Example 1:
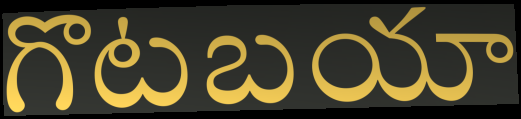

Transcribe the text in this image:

గొటబయా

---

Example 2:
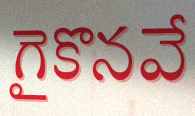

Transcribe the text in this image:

గైకొనవే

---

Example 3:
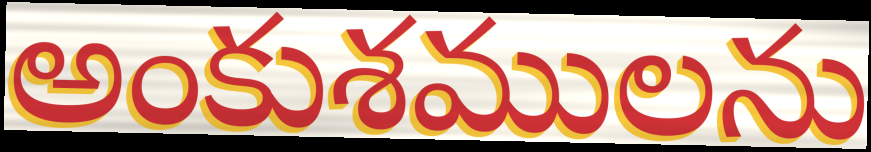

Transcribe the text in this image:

అంకుశములను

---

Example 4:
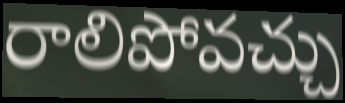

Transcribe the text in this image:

రాలిపోవచ్చు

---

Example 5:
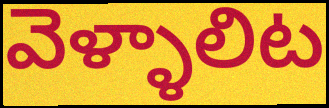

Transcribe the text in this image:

వెళ్ళాలిట